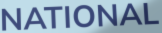
NATIONAL